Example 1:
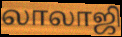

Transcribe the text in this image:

லாலாஜி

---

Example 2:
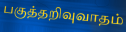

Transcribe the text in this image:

பகுத்தறிவுவாதம்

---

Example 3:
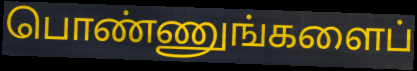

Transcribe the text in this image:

பொண்ணுங்களைப்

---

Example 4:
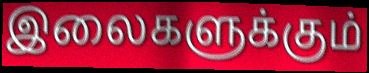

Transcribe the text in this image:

இலைகளுக்கும்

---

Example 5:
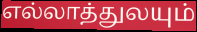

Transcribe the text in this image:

எல்லாத்துலயும்